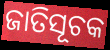
ଜାତିସୂଚକ